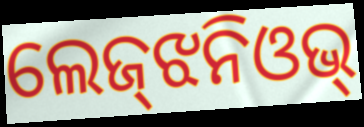
ଲେଜ୍‌ଝନିଓଭ୍